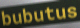
bubutus